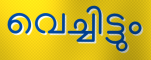
വെച്ചിട്ടും